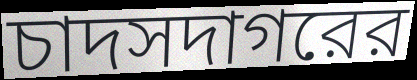
চাদসদাগরের